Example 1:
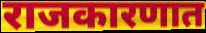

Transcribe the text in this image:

राजकारणात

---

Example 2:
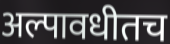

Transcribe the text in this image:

अल्पावधीतच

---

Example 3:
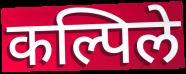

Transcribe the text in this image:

कल्पिले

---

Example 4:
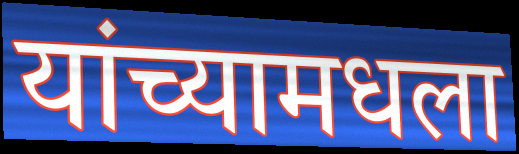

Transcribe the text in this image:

यांच्यामधला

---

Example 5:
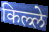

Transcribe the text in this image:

किल्ले